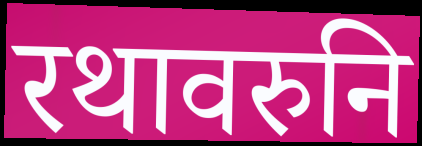
रथावरुनि